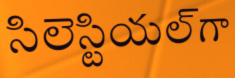
సిలెస్టియల్‌గా